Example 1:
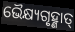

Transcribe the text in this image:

ଭୈକ୍ଷ୍ୟଗୃହ୍ଣାତ୍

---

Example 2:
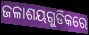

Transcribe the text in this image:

ଜଳାଶୟଗୁଡିକରେ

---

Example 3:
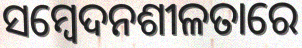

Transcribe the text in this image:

ସମ୍ବେଦନଶୀଳତାରେ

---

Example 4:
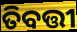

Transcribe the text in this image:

ତିବତ୍ତୀ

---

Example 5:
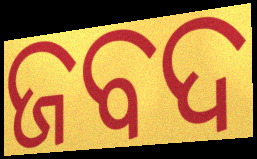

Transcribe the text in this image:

ଜବଦ